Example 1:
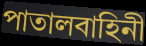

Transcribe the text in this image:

পাতালবাহিনী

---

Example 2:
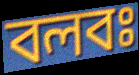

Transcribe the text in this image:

বলবঃ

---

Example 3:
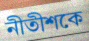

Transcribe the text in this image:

নীতীশকে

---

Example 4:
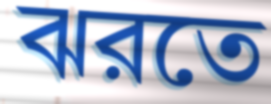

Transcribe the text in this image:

ঝরতে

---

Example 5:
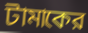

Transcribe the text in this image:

টামাকের